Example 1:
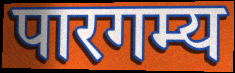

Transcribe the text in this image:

पारगम्य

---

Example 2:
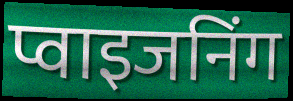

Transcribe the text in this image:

प्वाइजनिंग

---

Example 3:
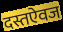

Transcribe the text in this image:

दस्तऐवज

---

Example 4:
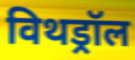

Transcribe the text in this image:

विथड्रॉल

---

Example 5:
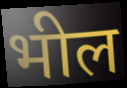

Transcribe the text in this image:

भील